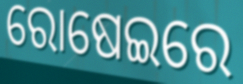
ରୋଷେଇରେ